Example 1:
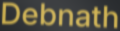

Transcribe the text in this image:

Debnath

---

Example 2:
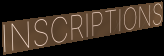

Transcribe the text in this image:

INSCRIPTIONS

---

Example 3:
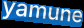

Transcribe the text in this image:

yamune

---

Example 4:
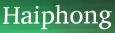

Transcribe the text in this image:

Haiphong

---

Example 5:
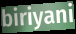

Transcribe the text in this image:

biriyani